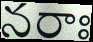
నరాః